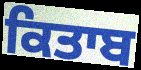
ਕਿਤਾਬ